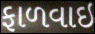
ફાળવાઇ